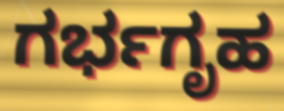
ಗರ್ಭಗೃಹ